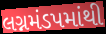
લગ્નમંડપમાંથી